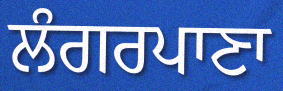
ਲੰਗਰਪਾਣਾ